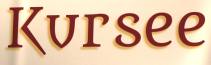
Kursee